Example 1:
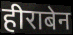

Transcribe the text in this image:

हीराबेन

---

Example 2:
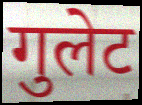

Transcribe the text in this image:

गुलेट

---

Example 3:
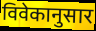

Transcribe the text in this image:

विवेकानुसार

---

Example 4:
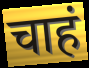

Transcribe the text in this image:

चाहं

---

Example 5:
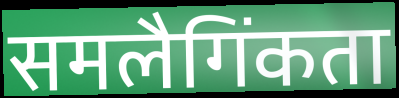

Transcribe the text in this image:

समलैगिंकता